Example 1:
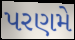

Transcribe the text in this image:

પરણમે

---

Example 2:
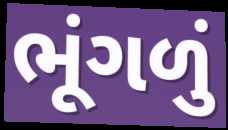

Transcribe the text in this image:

ભૂંગળું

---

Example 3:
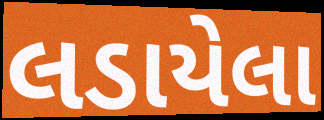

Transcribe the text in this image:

લડાયેલા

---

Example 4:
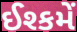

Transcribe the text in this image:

ઈશ્કમેં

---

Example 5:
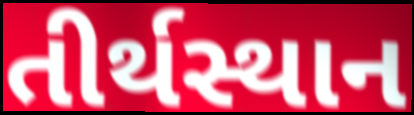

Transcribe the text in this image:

તીર્થસ્થાન